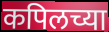
कपिलच्या